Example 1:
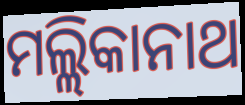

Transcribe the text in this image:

ମଲ୍ଲିକାନାଥ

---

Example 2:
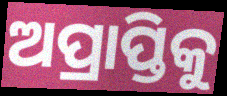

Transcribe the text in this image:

ଅପ୍ରାପ୍ତିକୁ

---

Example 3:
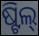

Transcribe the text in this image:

ଷ୍ଟିଲ୍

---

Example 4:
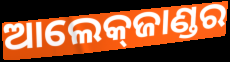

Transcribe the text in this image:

ଆଲେକ୍‌ଜାଣ୍ଡର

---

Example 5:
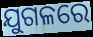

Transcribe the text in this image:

ଯୁଗଳରେ